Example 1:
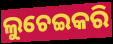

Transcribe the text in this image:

ଲୁଚେଇକରି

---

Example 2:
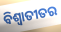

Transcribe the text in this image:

ବିଶ୍ଵାତୀତର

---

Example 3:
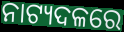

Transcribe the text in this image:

ନାଟ୍ୟଦଳରେ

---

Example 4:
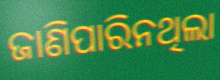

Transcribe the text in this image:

ଜାଣିପାରିନଥିଲା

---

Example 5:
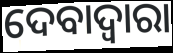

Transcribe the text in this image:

ଦେବାଦ୍ବାରା